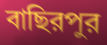
বাছিরপুর